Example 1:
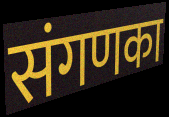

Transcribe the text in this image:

संगणका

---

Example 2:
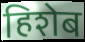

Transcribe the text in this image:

हिशेब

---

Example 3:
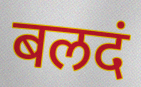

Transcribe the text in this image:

बलदं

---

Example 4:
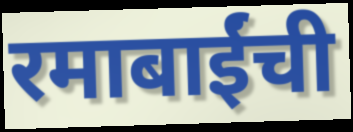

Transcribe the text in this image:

रमाबाईंची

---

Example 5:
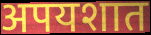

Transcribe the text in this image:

अपयशात